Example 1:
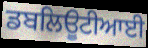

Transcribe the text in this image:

ਡਬਲਿਊਟੀਆਈ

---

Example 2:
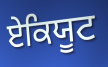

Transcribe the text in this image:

ਏਕਿਯੂਟ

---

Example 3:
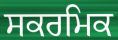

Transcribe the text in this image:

ਸਕਰਮਿਕ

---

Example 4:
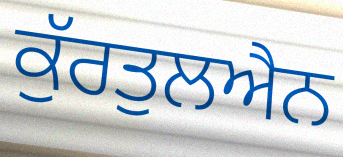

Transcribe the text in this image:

ਕੁੱਰਤੁਲਐਨ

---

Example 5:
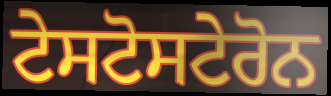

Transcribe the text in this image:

ਟੇਸਟੋਸਟੇਰੋਨ